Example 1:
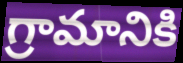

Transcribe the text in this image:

గ్రామానికి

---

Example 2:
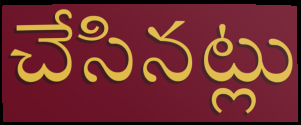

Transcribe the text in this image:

చేసినట్లు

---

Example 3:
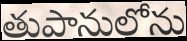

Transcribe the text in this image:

తుపానులోను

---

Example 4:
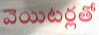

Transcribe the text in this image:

వెయిటర్లతో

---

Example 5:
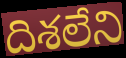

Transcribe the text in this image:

దిశలేని